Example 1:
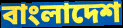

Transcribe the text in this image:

বাংলাদেশ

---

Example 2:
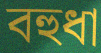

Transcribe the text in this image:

বহুধা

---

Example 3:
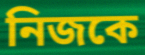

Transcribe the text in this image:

নিজকে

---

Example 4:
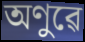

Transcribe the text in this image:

অণুৱে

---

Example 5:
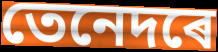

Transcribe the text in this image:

তেনেদৰে